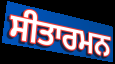
ਸੀਤਾਰਮਨ